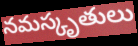
నమస్కృతులు